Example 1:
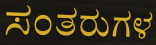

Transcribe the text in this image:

ಸಂತರುಗಳ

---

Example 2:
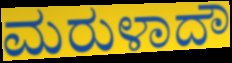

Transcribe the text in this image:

ಮರುಳಾದೌ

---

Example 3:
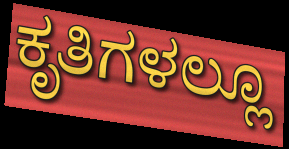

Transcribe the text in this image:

ಕೃತಿಗಳಲ್ಲೂ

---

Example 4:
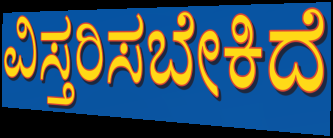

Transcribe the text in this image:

ವಿಸ್ತರಿಸಬೇಕಿದೆ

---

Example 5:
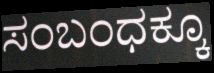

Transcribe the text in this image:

ಸಂಬಂಧಕ್ಕೂ